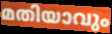
മതിയാവും